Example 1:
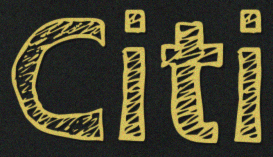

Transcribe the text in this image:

Citi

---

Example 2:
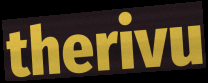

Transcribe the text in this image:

therivu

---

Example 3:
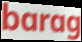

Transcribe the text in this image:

barag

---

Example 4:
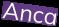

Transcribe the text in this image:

Anca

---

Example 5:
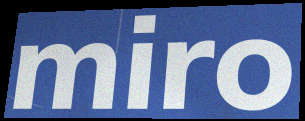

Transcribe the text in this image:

miro